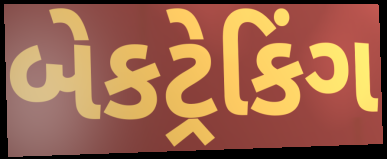
બેકટ્રેકિંગ